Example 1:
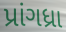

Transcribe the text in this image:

પ્રાંગધ્રા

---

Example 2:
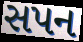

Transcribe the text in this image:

સપન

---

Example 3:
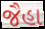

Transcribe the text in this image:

જૈહા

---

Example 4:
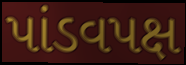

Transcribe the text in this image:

પાંડવપક્ષ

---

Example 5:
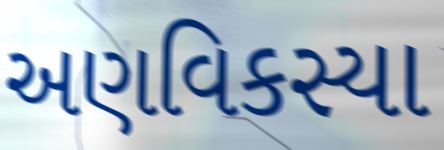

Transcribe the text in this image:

અણવિકસ્યા